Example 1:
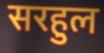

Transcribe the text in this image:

सरहुल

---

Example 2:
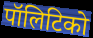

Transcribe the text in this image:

पॉलिटिको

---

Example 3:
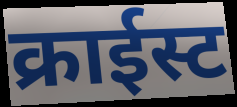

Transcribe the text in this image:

क्राईस्ट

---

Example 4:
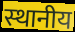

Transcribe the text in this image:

स्‍थानीय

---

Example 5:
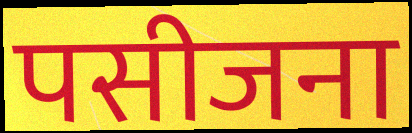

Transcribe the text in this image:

पसीजना